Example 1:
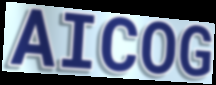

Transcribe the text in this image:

AICOG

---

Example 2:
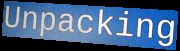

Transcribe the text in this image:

Unpacking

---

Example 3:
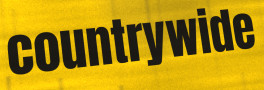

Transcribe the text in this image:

countrywide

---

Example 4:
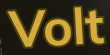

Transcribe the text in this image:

Volt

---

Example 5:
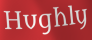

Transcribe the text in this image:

Hughly